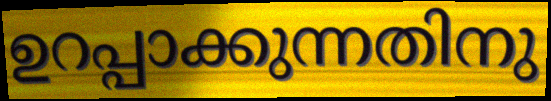
ഉറപ്പാക്കുന്നതിനു